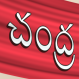
చంద్ర